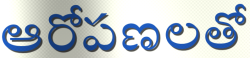
ఆరోపణలతో